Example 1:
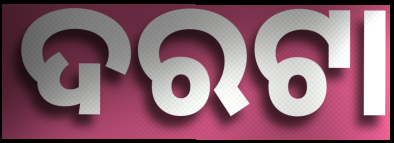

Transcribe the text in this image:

ଦରଟା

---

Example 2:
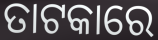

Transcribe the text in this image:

ତାଟକାରେ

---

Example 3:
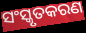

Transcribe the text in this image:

ସଂସ୍କୃତକରଣ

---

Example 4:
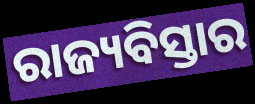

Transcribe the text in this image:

ରାଜ୍ୟବିସ୍ତାର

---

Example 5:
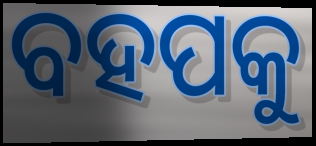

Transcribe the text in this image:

ବହପକୁ